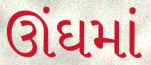
ઊંઘમાં